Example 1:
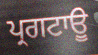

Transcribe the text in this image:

ਪ੍ਰਗਟਾਊ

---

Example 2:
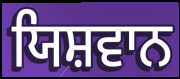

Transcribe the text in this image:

ਯਿਸ਼ਵਾਨ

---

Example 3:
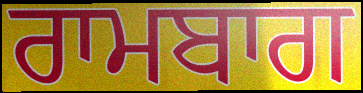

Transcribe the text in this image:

ਰਾਮਬਾਗ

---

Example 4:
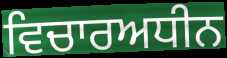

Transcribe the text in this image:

ਵਿਚਾਰਅਧੀਨ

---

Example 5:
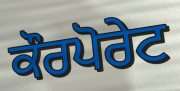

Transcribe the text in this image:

ਕੌਰਪੋਰੇਟ